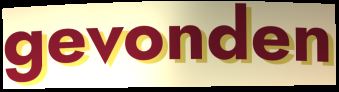
gevonden